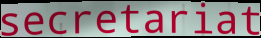
secretariat